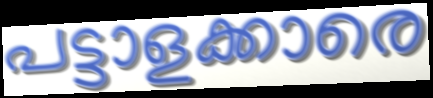
പട്ടാളക്കാരെ